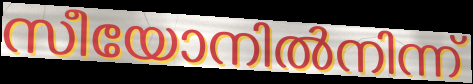
സീയോനിൽനിന്ന്